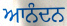
ਆਨੰਦਨ